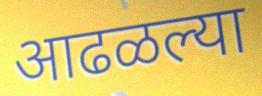
आढळल्या